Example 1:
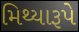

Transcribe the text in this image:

મિથ્યારૂપે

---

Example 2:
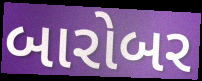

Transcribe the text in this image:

બારોબર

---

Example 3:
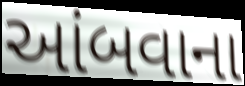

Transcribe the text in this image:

આંબવાના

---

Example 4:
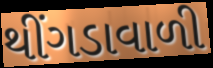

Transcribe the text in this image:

થીંગડાવાળી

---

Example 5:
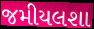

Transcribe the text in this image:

જમીયલશા